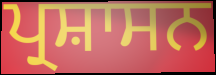
ਪ੍ਰਸ਼ਾਸਨ